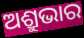
ଅଶ୍ରୁଭାର